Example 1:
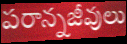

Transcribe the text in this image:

పరాన్నజీవులు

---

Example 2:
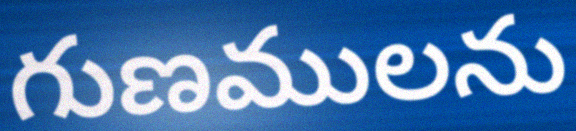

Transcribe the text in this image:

గుణములను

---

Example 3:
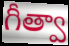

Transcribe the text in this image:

గీత్వా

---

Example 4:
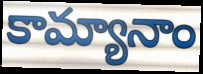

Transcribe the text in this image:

కామ్యానాం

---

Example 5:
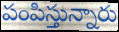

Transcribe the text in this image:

పంపిస్తున్నారు